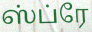
ஸ்ப்ரே